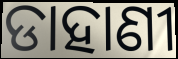
ଡାହାଣୀ